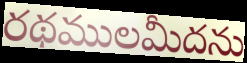
రథములమీదను